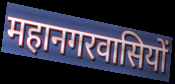
महानगरवासियों